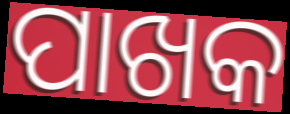
ପାଖକ